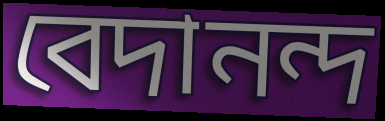
বেদানন্দ